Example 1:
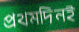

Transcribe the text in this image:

প্রথমদিনই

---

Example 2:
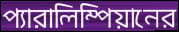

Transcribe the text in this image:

প্যারালিম্পিয়ানের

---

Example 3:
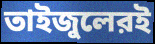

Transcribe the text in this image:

তাইজুলেরই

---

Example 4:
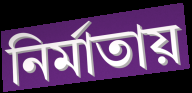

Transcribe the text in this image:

নির্মাতায়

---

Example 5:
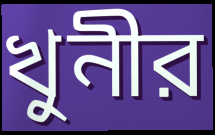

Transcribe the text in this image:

খুনীর